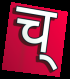
च्